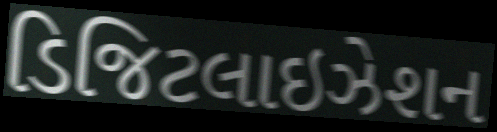
ડિજિટલાઇઝેશન